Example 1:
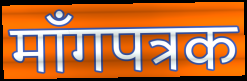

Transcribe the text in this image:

माँगपत्रक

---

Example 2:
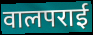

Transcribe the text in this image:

वालपराई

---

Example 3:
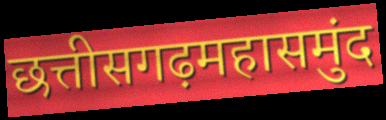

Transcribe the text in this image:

छत्तीसगढ़महासमुंद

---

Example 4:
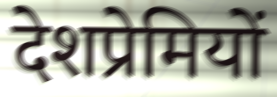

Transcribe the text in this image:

देशप्रेमियों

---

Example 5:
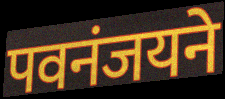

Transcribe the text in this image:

पवनंजयने